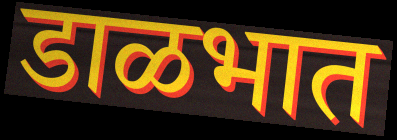
डाळभात